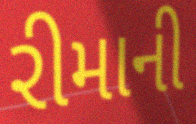
રીમાની